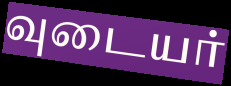
வுடையர்